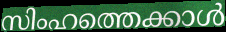
സിംഹത്തെക്കാൾ